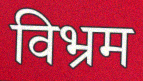
विभ्रम